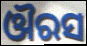
ଔରସ